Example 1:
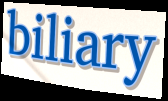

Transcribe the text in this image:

biliary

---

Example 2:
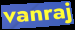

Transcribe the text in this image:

vanraj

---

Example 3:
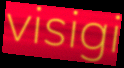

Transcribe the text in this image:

visigi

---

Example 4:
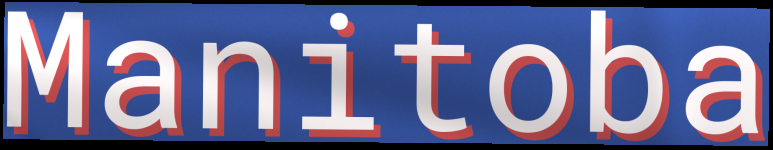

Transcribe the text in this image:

Manitoba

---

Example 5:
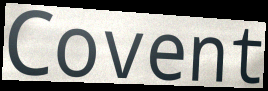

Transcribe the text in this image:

Covent